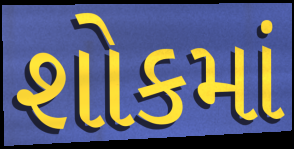
શોકમાં